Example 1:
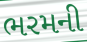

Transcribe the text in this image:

ભરમની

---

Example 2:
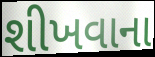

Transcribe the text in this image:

શીખવાના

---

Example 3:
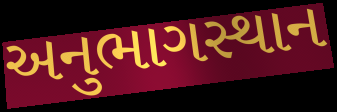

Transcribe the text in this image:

અનુભાગસ્થાન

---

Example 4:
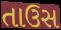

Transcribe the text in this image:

તાઉસ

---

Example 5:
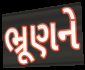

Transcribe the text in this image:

ભ્રૂણને